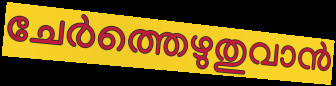
ചേർത്തെഴുതുവാൻ